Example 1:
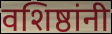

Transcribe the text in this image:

वशिष्ठांनी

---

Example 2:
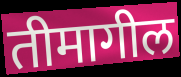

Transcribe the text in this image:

तीमागील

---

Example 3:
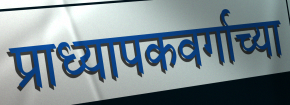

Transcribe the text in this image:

प्राध्यापकवर्गाच्या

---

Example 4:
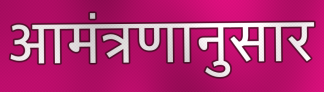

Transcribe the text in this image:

आमंत्रणानुसार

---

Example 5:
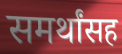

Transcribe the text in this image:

समर्थांसह